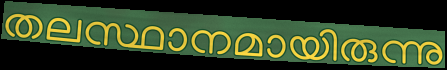
തലസ്ഥാനമായിരുന്നു